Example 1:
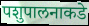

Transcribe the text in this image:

पशुपालनाकडे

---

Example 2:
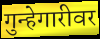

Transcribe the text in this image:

गुन्हेगारीवर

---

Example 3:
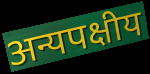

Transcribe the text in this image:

अन्यपक्षीय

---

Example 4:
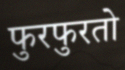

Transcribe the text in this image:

फुरफुरतो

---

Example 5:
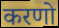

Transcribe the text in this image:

करणो